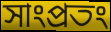
সাংপ্রতং